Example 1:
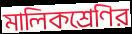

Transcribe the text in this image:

মালিকশ্রেণির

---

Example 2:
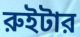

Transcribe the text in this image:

রুইটার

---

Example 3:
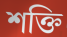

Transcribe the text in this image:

শক্তি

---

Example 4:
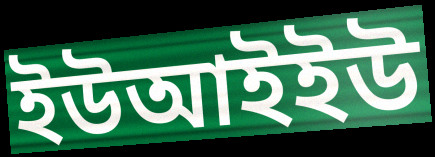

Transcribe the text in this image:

ইউআইইউ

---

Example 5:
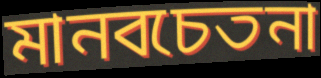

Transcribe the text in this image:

মানবচেতনা